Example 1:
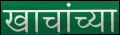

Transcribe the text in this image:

खाचांच्या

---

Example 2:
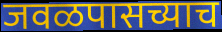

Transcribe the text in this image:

जवळपासच्याच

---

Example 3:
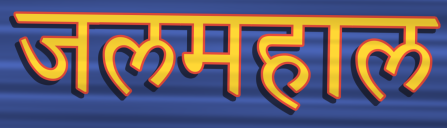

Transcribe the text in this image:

जलमहाल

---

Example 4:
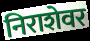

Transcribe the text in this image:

निराशेवर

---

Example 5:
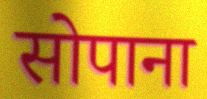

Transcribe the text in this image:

सोपाना